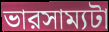
ভারসাম্যটা